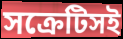
সক্রেটিসই